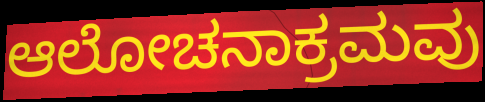
ಆಲೋಚನಾಕ್ರಮವು